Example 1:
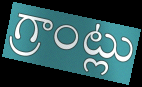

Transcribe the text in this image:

గ్రాంట్లు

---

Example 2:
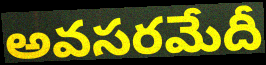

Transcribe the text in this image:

అవసరమేదీ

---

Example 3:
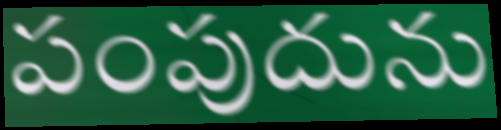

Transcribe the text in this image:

పంపుదును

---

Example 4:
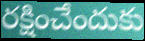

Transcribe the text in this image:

రక్షించేందుకు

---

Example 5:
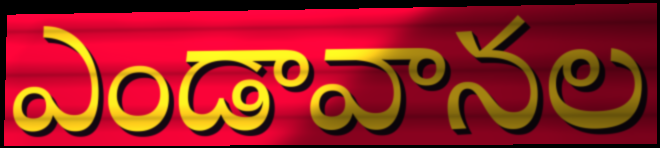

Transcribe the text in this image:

ఎండావానల